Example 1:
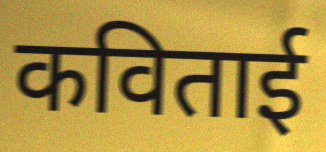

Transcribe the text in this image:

कविताई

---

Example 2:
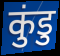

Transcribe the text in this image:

कुंडु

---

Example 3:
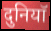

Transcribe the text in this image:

दुनियॉ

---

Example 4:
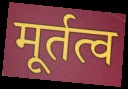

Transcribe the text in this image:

मूर्तत्व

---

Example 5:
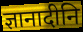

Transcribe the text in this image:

ज्ञानादीनि